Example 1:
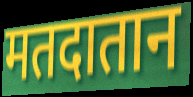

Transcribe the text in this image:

मतदातान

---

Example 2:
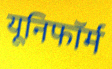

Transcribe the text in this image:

यूनिफॉर्म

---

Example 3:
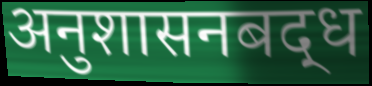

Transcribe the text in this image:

अनुशासनबद्ध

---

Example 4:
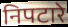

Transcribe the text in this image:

निपटारे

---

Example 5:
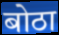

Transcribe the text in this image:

बोठा